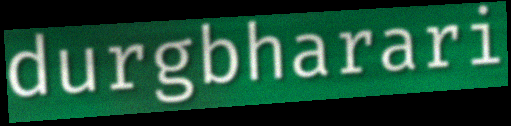
durgbharari